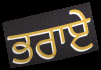
ਭਰਾਏ